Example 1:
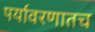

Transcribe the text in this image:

पर्यावरणातच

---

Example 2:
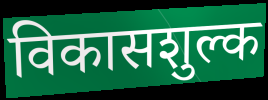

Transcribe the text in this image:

विकासशुल्क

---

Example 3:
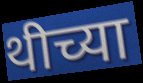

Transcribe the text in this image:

थीच्या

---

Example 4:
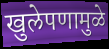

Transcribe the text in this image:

खुलेपणामुळे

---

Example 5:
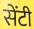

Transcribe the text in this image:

सेंटी